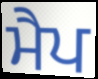
ਮੈਪ